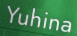
Yuhina